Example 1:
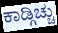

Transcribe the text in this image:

ಕಾಡ್ಗಿಚ್ಚು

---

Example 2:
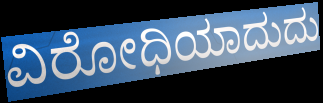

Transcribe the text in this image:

ವಿರೋಧಿಯಾದುದು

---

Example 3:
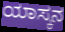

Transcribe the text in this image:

ಯಾಸ್ಕನ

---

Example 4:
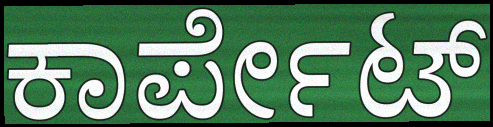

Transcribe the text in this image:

ಕಾರ್ಪೇಟ್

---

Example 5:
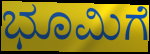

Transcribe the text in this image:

ಭೂಮಿಗೆ